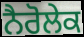
ਨੈਰੋਲੇਕ